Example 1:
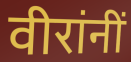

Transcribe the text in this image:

वीरांनीं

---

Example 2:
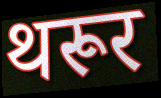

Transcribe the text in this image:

थरूर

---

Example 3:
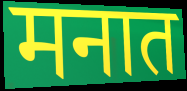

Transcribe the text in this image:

मनात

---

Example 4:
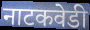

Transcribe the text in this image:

नाटकवेडी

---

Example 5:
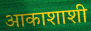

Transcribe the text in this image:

आकाशाशी